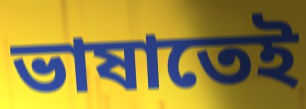
ভাষাতেই